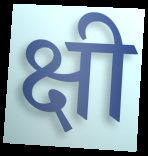
क्षी